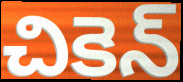
చికెన్